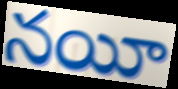
నయీ